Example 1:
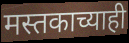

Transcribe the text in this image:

मस्तकाच्याही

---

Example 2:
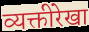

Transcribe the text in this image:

व्यक्तीरेखा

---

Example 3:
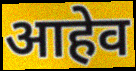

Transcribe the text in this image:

आहेव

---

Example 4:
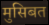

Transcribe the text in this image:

मुसिबत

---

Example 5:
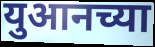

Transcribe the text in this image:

युआनच्या